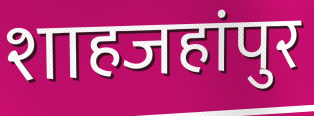
शाहजहांपुर